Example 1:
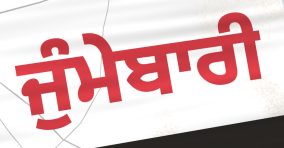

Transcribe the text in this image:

ਜੁੰਮੇਬਾਰੀ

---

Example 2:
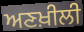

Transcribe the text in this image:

ਅਣਖ਼ੀਲੀ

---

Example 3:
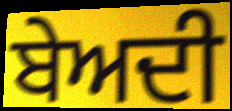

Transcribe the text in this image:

ਬੇਅਦੀ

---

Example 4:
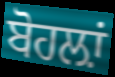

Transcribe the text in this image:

ਬੋਹਲ਼ਾਂ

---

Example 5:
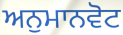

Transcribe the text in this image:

ਅਨੁਮਾਨਵੋਟ